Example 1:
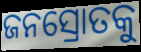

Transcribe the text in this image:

ଜନସ୍ରୋତକୁ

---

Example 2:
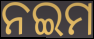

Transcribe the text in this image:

ନଇମ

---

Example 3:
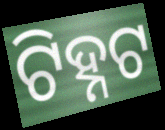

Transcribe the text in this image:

ଟିହ୍ନଟ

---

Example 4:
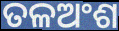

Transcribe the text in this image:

ତଳଅଂଶ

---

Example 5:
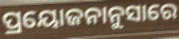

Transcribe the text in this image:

ପ୍ରୟୋଜନାନୁସାରେ